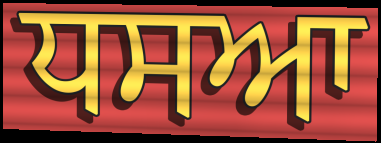
ਧਸਆ